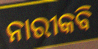
ନାରୀକବି